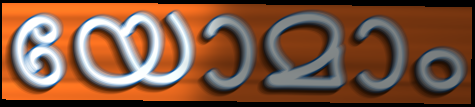
യോമാം